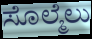
ಸೊಲ್ಮೆಲು